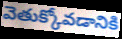
వెతుక్కోవడానికి